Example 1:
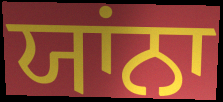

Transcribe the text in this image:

ਯਾਂਨਾ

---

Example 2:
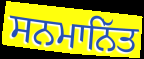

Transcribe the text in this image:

ਸਨਮਾਨਿੱਤ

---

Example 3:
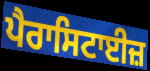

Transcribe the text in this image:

ਪੈਰਾਸਿਟਾਈਜ਼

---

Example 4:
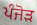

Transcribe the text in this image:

ਪੰਜੋੜ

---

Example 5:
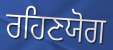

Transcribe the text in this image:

ਰਹਿਣਯੋਗ